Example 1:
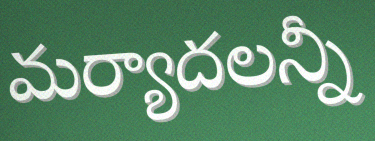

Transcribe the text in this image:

మర్యాదలన్నీ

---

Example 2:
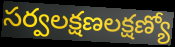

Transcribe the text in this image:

సర్వలక్షణలక్షణ్యో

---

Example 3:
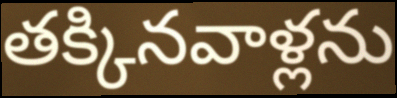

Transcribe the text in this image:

తక్కినవాళ్లను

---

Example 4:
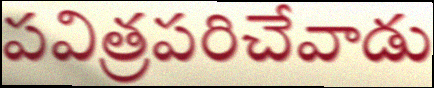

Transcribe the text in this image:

పవిత్రపరిచేవాడు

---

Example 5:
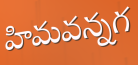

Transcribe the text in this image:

హిమవన్నగ